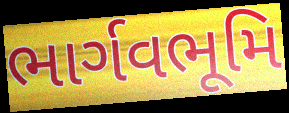
ભાર્ગવભૂમિ